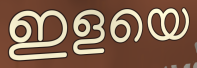
ഇളയെ